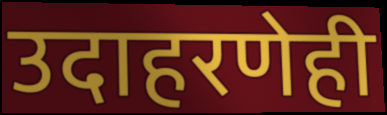
उदाहरणेही